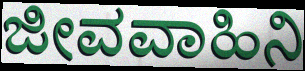
ಜೀವವಾಹಿನಿ